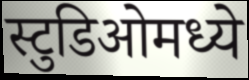
स्टुडिओमध्ये